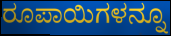
ರೂಪಾಯಿಗಳನ್ನೂ